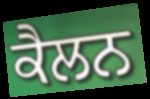
ਕੈਲਨ